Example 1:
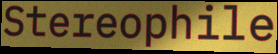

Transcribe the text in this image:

Stereophile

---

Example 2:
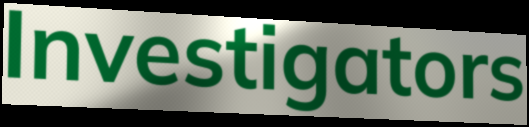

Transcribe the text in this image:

Investigators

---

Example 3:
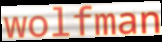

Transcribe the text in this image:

wolfman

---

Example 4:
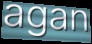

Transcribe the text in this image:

agan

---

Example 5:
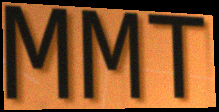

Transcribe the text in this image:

MMT